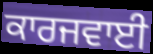
ਕਾਰਜਵਾਈ